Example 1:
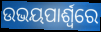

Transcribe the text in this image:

ଉଭୟପାର୍ଶ୍ବରେ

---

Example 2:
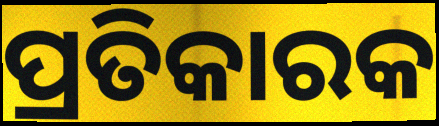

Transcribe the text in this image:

ପ୍ରତିକାରକ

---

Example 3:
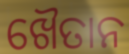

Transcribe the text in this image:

ଖୈତାନ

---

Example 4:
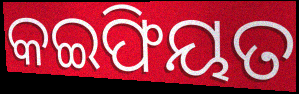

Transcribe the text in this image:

କଇଫିୟତ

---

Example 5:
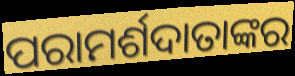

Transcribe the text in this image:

ପରାମର୍ଶଦାତାଙ୍କର